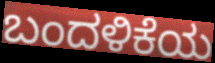
ಬಂದಳಿಕೆಯ